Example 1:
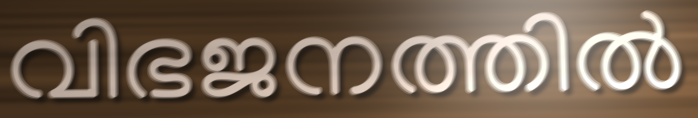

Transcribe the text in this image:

വിഭജനത്തിൽ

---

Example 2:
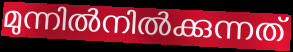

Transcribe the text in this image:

മുന്നിൽനിൽക്കുന്നത്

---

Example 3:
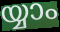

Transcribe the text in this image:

യ്യാം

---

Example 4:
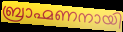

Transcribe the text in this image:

ബ്രാഹ്മണനായി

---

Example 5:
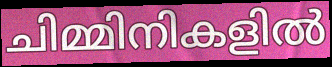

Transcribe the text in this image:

ചിമ്മിനികളിൽ